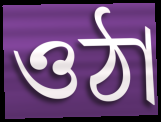
ওঠা